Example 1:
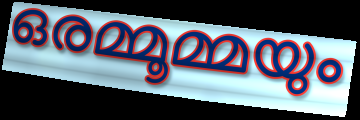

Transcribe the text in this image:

ഒരമ്മൂമ്മയും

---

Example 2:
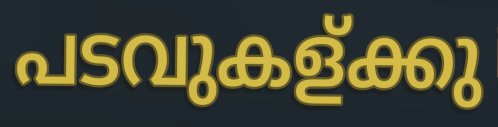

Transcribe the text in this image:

പടവുകള്ക്കു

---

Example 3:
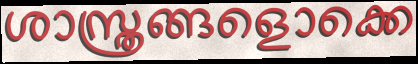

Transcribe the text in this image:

ശാസ്ത്രങ്ങളൊക്കെ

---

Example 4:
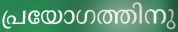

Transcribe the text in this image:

പ്രയോഗത്തിനു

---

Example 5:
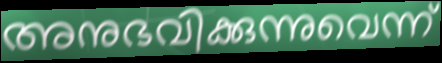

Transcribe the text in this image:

അനുഭവിക്കുന്നുവെന്ന്